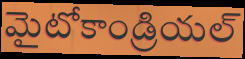
మైటోకాండ్రియల్